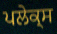
ਪਲੇਕ੍ਸ